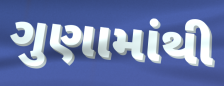
ગુણામાંથી